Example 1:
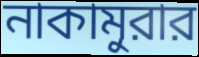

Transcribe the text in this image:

নাকামুরার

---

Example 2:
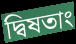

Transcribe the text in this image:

দ্বিষতাং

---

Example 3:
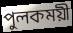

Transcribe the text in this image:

পুলকময়ী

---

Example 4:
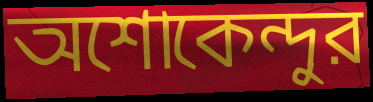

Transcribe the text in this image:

অশোকেন্দুর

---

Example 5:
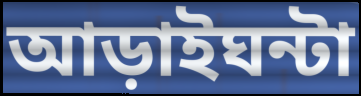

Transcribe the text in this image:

আড়াইঘন্টা